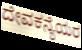
ದೇವಕನ್ಯೆಯರ